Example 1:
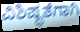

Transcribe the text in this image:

ವಿಶಿಷ್ಟತೆಗಾಗಿ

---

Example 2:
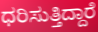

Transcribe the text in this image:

ಧರಿಸುತ್ತಿದ್ದಾರೆ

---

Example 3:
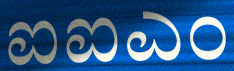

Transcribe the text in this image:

ಐಐಎಂ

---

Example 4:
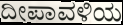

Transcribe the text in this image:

ದೀಪಾವಳಿಯ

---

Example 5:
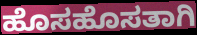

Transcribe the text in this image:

ಹೊಸಹೊಸತಾಗಿ